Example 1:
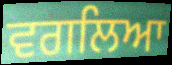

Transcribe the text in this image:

ਵਗਲਿਆ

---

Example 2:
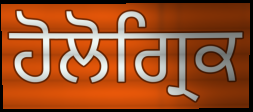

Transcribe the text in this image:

ਹੋਲੋਗ੍ਰਿਕ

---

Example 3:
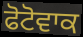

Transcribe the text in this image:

ਫੋਟੋਵਾਕ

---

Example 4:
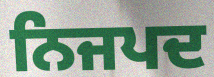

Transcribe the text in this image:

ਨਿਜਪਦ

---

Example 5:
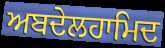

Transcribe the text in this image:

ਅਬਦੇਲਹਾਮਿਦ